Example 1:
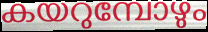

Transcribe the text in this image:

കയറുമ്പോഴും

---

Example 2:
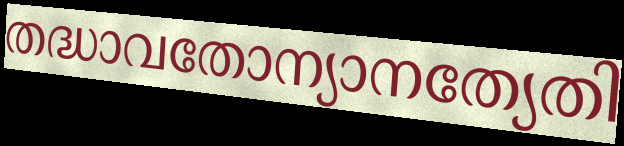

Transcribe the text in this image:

തദ്ധാവതോന്യാനത്യേതി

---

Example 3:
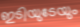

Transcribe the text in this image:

ഇടിയുടേയും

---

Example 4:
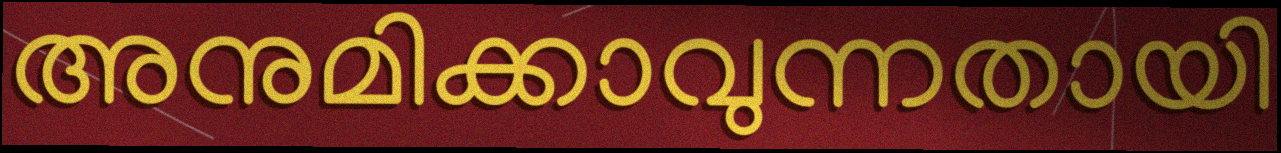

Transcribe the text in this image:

അനുമിക്കാവുന്നതായി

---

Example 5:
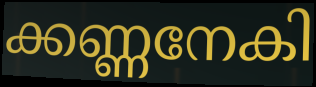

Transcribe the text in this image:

ക്കണ്ണനേകി